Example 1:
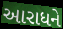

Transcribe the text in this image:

આરાધને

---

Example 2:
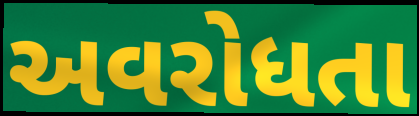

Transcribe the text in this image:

અવરોધતા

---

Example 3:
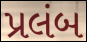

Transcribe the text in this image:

પ્રલંબ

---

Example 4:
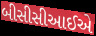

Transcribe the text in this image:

બીસીસીઆઈએ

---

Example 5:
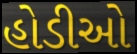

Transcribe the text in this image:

હોડીઓ